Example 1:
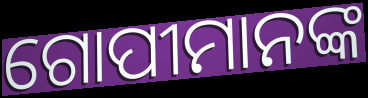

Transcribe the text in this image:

ଗୋପୀମାନଙ୍କ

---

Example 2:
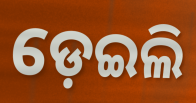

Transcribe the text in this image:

ଡ଼େଇଲି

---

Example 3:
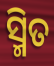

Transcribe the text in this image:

ସ୍ମିତ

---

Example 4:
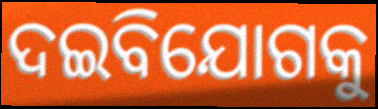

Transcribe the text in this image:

ଦଇବିଯୋଗକୁ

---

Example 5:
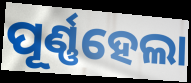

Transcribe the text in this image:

ପୂର୍ଣ୍ଣହେଲା